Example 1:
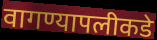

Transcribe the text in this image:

वागण्यापलीकडे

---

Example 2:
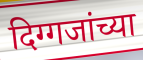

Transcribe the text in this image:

दिग्गजांच्या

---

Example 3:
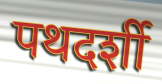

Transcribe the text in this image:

पथदर्शी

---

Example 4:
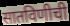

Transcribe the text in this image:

सातविणीची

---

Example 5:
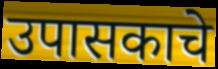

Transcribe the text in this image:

उपासकाचे